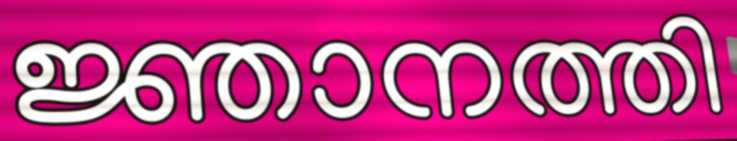
ജ്ഞാനത്തി